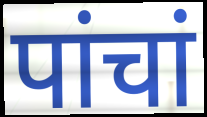
पांचां